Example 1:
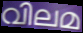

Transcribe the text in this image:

വിലമ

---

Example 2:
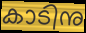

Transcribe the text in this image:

കാടിനു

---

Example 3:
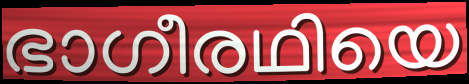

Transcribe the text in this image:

ഭാഗീരഥിയെ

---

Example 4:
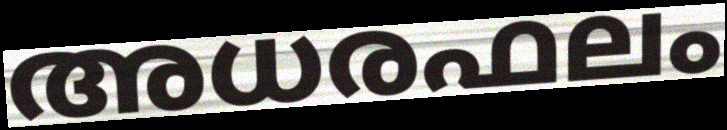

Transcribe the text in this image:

അധരഫലം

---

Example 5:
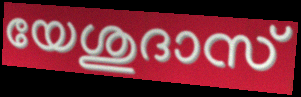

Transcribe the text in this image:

യേശുദാസ്